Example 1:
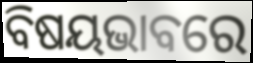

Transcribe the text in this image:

ବିଷୟଭାବରେ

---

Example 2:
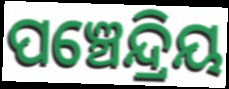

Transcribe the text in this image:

ପଞ୍ଚେନ୍ଦ୍ରିୟ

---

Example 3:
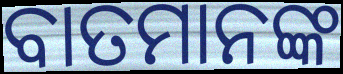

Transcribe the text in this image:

ବାତମାନଙ୍କ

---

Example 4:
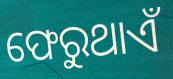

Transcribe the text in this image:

ଫେରୁଥାଏଁ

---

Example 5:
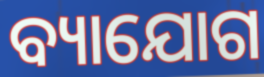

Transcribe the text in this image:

ବ୍ୟାଯୋଗ